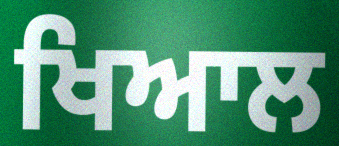
ਖਿਆਲ